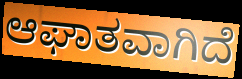
ಆಘಾತವಾಗಿದೆ